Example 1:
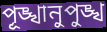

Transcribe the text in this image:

পূঙ্খানুপুঙ্খ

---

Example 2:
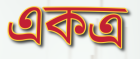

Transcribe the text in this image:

একত্র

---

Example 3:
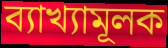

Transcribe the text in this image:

ব্যাখ্যামূলক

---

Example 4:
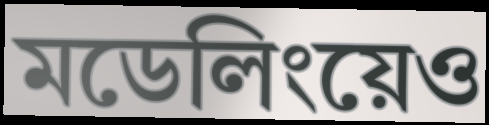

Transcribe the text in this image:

মডেলিংয়েও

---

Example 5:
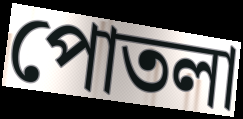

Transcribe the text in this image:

পোতলা